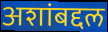
अशांबद्दल